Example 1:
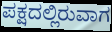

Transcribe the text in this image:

ಪಕ್ಷದಲ್ಲಿರುವಾಗ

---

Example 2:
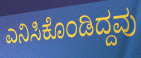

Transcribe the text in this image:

ಎನಿಸಿಕೊಂಡಿದ್ದವು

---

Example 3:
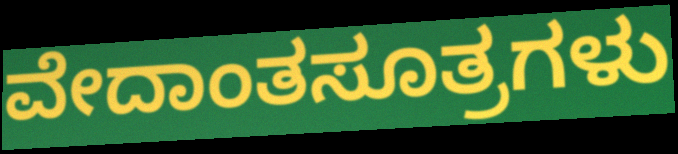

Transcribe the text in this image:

ವೇದಾಂತಸೂತ್ರಗಳು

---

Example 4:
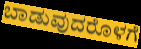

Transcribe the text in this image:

ಬಾಡುವುದರೊಳಗೆ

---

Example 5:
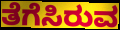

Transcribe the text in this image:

ತೆಗೆಸಿರುವ